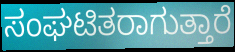
ಸಂಘಟಿತರಾಗುತ್ತಾರೆ